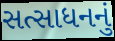
સત્સાધનનું